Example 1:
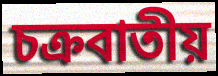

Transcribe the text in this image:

চক্রবাতীয়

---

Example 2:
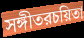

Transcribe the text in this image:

সঙ্গীতরচয়িতা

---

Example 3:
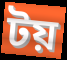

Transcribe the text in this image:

টয়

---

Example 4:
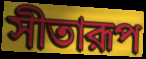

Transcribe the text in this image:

সীতারূপ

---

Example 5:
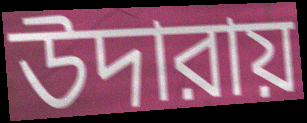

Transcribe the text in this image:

উদারায়